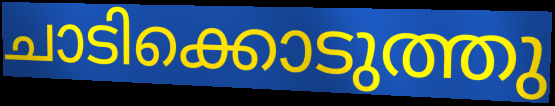
ചാടിക്കൊടുത്തു